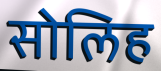
सोलिह